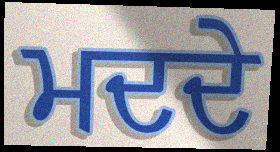
ਮਦਦੇ